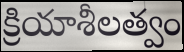
క్రియాశీలత్వం